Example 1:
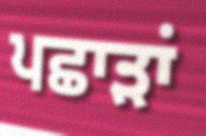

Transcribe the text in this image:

ਪਛਾੜਾਂ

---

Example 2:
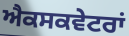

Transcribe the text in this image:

ਐਕਸਕਵੇਟਰਾਂ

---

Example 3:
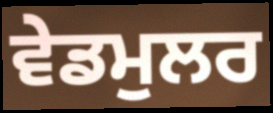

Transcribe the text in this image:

ਵੇਡਮੁਲਰ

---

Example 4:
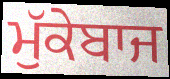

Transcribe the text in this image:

ਮੁੱਕੇਬਾਜ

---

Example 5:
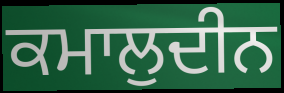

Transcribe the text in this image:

ਕਮਾਲੁਦੀਨ